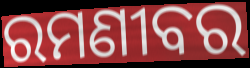
ରମଣୀବର